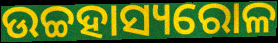
ଉଚ୍ଚହାସ୍ୟରୋଳ